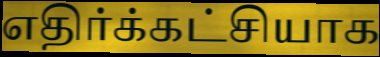
எதிர்க்கட்சியாக